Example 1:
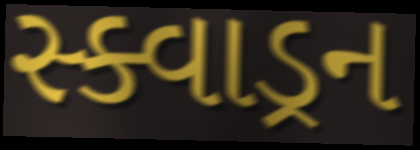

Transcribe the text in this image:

સ્ક્વાડ્રન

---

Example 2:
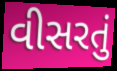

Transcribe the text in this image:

વીસરતું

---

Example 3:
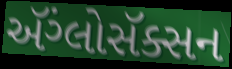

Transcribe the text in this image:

ઍંગ્લોસૅક્સન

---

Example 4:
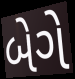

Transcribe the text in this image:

બેગે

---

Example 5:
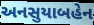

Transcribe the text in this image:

અનસુયાબહેન